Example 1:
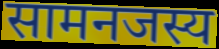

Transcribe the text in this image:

सामनजस्य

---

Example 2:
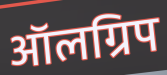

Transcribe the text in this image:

ऑलग्रिप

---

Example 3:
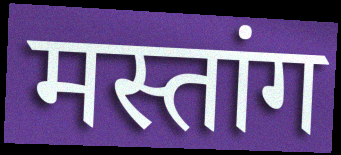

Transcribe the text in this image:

मस्तांग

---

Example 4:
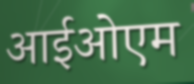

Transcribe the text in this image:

आईओएम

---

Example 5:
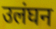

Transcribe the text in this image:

उलंघन